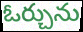
ఓర్చును